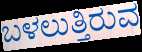
ಬಳಲುತ್ತಿರುವ